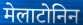
मेलाटोनिन